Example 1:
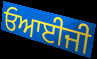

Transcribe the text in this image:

ਓਆਈਜੀ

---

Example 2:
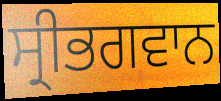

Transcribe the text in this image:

ਸ੍ਰੀਭਗਵਾਨ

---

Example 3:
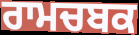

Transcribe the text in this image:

ਰਾਮਚਬਕ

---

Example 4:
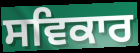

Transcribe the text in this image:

ਸਵਿਕਾਰ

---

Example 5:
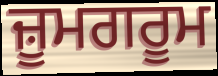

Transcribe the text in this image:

ਜ਼ੂਮਗਰੂਮ